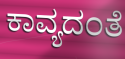
ಕಾವ್ಯದಂತೆ